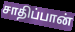
சாதிப்பான்